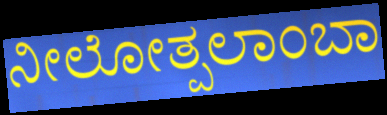
ನೀಲೋತ್ಪಲಾಂಬಾ